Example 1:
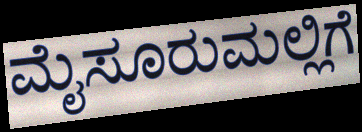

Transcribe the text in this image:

ಮೈಸೂರುಮಲ್ಲಿಗೆ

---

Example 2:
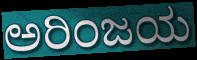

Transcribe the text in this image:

ಅರಿಂಜಯ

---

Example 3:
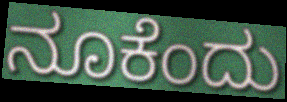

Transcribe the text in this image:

ನೂಕೆಂದು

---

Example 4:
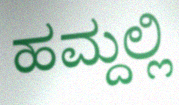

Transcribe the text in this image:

ಹಮ್ದಲ್ಲಿ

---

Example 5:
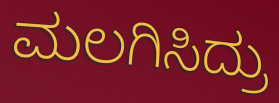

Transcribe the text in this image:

ಮಲಗಿಸಿದ್ರು